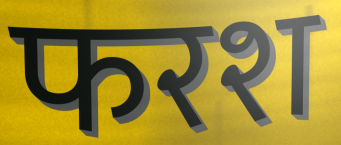
फरश